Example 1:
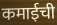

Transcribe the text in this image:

कमाईची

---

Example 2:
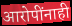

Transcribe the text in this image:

आरोपींनाही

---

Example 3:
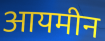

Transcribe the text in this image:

आयमीन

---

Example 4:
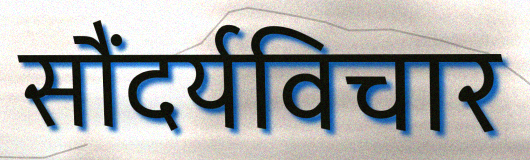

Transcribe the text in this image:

सौंदर्यविचार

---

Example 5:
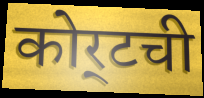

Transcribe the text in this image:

कोर्टची